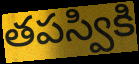
తపస్వికి